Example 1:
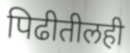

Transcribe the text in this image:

पिढीतीलही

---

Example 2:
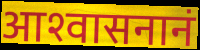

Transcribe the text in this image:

आश्वासनानं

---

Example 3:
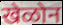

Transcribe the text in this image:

खेळोन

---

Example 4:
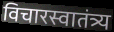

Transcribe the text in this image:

विचारस्वातंत्र्य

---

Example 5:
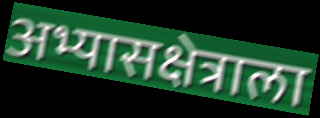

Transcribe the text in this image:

अभ्यासक्षेत्राला